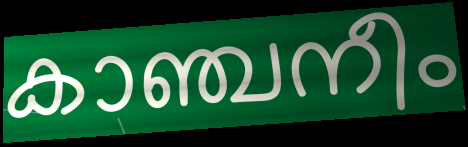
കാഞ്ചനീം